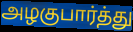
அழகுபார்த்து